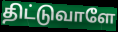
திட்டுவாளே